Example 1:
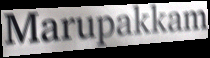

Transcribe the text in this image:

Marupakkam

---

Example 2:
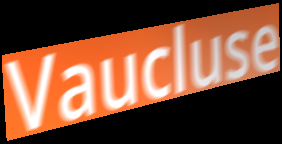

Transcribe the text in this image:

Vaucluse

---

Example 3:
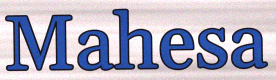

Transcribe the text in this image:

Mahesa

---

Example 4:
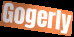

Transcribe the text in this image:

Gogerly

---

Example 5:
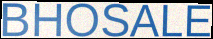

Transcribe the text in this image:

BHOSALE